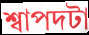
শ্বাপদটা